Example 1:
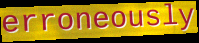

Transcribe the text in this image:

erroneously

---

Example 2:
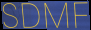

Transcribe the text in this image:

SDMF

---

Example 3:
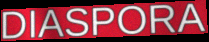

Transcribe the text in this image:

DIASPORA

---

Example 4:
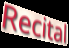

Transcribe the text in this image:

Recital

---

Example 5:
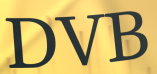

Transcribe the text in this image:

DVB